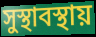
সুস্থাবস্থায়